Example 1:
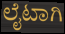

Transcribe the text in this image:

ಲೈಟಾಗಿ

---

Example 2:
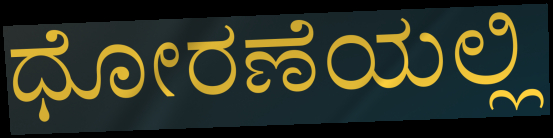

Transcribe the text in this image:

ಧೋರಣೆಯಲ್ಲಿ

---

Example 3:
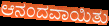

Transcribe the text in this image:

ಆನಂದವಾಯಿತು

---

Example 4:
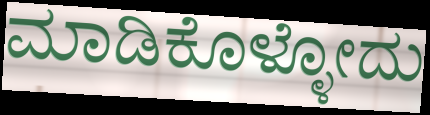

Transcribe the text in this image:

ಮಾಡಿಕೊಳ್ಳೋದು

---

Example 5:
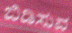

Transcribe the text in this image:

ಬಿಡಿಸುವ